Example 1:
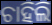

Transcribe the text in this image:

ଚାହିଲି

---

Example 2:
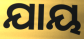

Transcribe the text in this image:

ଯାୟ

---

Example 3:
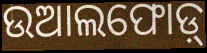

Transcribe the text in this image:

ଉଆଲଫୋଡ଼୍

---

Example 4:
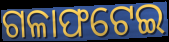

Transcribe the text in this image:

ଗଳାଫଟେଇ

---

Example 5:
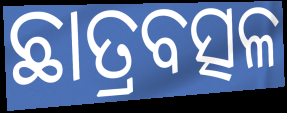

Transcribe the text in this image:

ଛାତ୍ରବତ୍ସଳ